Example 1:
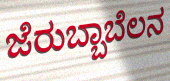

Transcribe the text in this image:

ಜೆರುಬ್ಬಾಬೆಲನ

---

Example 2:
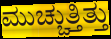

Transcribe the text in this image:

ಮುಚ್ಚುತ್ತಿತ್ತು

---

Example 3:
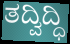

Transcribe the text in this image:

ತದ್ವಿದ್ಧಿ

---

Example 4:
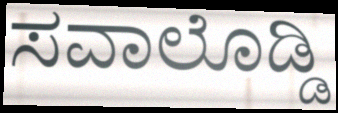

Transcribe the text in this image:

ಸವಾಲೊಡ್ಡಿ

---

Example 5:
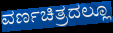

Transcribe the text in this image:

ವರ್ಣಚಿತ್ರದಲ್ಲೂ